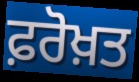
ਫ਼ਰੋਖ਼ਤ